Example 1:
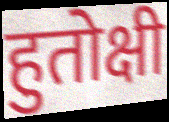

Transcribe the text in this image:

हुतोक्षी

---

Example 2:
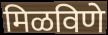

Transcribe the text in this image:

मिळविणे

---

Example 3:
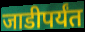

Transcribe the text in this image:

जाडीपर्यंत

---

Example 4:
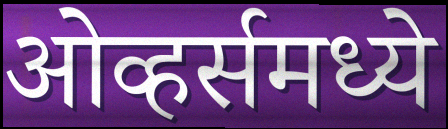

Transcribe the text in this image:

ओव्हर्समध्ये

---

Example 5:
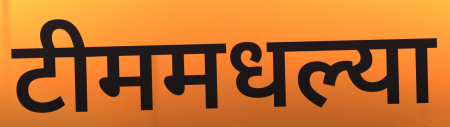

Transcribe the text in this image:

टीममधल्या